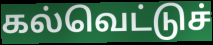
கல்வெட்டுச்